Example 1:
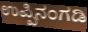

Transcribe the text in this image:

ಉಪ್ಪಿನಂಗಡಿ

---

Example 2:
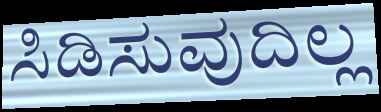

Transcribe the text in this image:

ಸಿಡಿಸುವುದಿಲ್ಲ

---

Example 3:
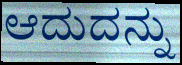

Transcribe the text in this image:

ಆದುದನ್ನು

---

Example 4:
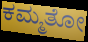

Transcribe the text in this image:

ಕಮ್ಮತೋ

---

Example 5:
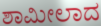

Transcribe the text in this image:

ಶಾಮೀಲಾದ